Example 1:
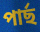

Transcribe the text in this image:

পাৰ্ছ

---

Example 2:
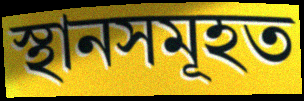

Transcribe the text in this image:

স্থানসমূহত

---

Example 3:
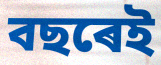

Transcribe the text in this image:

বছৰেই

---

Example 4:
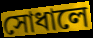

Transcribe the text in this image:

সোধালে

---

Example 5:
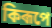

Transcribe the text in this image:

কিৰূপে